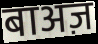
बाअज़